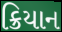
ક્રિયાન